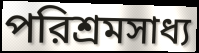
পরিশ্রমসাধ্য